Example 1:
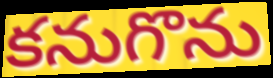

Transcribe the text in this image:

కనుగొను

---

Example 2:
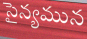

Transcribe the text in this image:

సైన్యమున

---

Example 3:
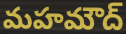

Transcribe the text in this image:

మహమౌద్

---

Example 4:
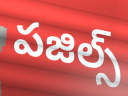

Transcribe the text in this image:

పజిల్స్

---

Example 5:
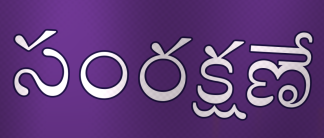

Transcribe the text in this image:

సంరక్షణే